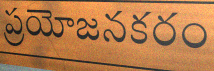
ప్రయోజనకరం